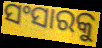
ସଂସାରକୁ